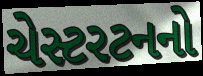
ચેસ્ટરટનનો